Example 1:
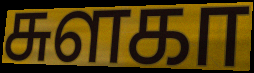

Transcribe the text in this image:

சுளகா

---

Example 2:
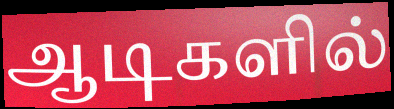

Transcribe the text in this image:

ஆடிகளில்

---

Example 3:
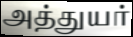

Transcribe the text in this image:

அத்துயர்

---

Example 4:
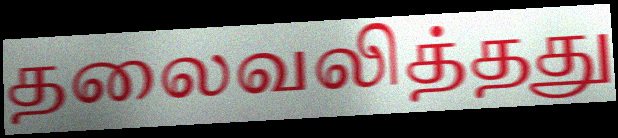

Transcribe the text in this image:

தலைவலித்தது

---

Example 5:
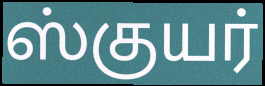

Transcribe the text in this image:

ஸ்குயர்